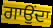
ਗਾਉਂਦਾ